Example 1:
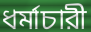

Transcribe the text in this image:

ধর্মাচারী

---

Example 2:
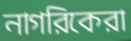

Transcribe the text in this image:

নাগরিকেরা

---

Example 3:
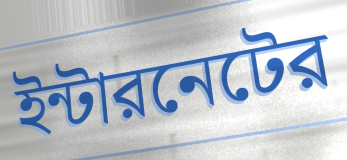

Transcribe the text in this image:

ইন্টারনেটের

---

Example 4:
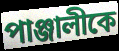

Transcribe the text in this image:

পাঞ্জালীকে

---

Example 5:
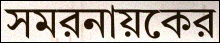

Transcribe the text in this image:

সমরনায়কের